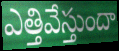
ఎత్తివేస్తుందా